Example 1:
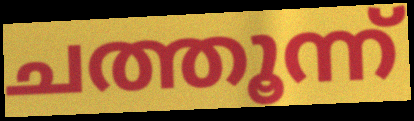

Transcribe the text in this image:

ചത്തൂന്ന്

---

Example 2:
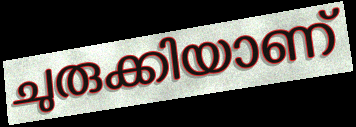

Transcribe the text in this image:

ചുരുക്കിയാണ്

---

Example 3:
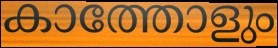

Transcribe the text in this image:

കാത്തോളും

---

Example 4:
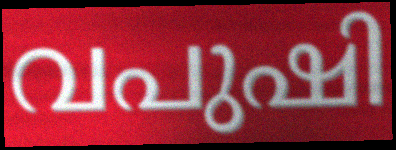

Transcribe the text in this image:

വപുഷി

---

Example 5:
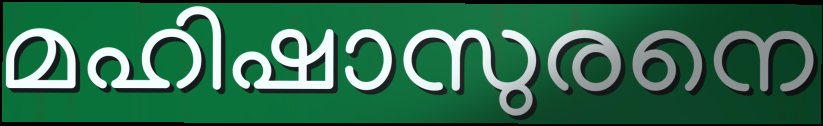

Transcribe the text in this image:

മഹിഷാസുരനെ